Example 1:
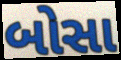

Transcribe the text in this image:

બોસા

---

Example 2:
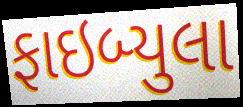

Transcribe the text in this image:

ફાઇબ્યુલા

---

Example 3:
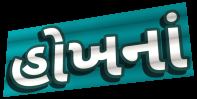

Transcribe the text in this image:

હોખનાં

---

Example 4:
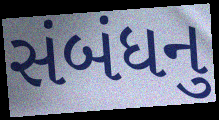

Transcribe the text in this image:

સંબંધનુ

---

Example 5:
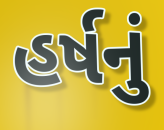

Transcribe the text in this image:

હર્ષનું